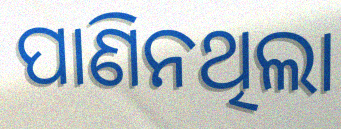
ପାଣିନଥିଲା